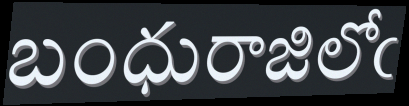
బంధురాజిలోఁ